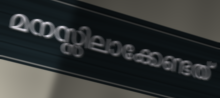
മനസ്സിലാക്കേണ്ടത്